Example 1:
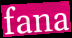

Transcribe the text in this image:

fana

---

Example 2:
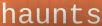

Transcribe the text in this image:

haunts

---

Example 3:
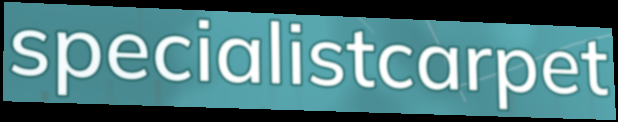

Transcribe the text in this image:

specialistcarpet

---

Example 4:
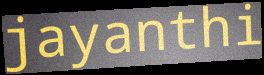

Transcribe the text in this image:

jayanthi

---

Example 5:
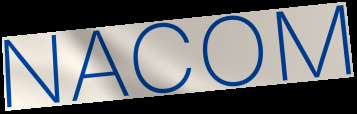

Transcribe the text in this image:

NACOM